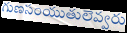
గుణసంయుతులెవ్వరు